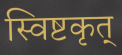
स्विष्टकृत्